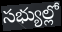
సభ్యుల్లో